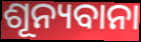
ଶୂନ୍ୟବାନା